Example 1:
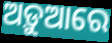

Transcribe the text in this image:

ଅଡ଼ୁଆରେ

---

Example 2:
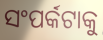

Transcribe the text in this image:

ସଂପର୍କଟାକୁ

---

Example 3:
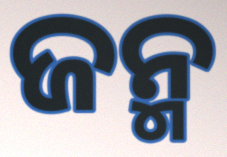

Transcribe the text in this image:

ଜନ୍ମ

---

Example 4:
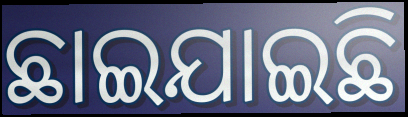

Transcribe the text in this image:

ଛାଇଯାଇଛି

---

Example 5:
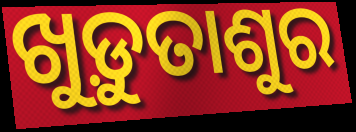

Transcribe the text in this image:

ଖୁଡ଼ୁତାଶୁର